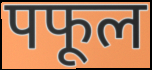
पफूल